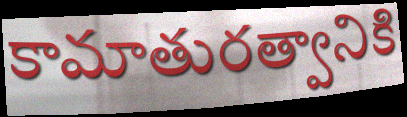
కామాతురత్వానికి